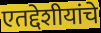
एतद्देशीयांचे